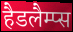
हैडलैम्प्स